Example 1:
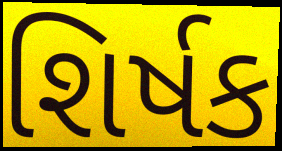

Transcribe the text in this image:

શિર્ષક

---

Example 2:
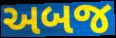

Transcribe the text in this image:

અબજ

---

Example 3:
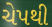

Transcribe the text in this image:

ચેપથી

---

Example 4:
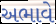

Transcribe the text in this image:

અભાવે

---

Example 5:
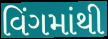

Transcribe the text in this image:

વિંગમાંથી